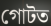
গোটত